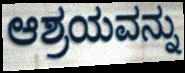
ಆಶ್ರಯವನ್ನು